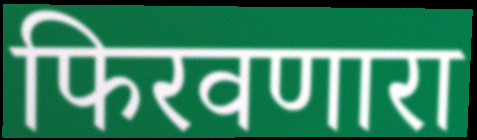
फिरवणारा